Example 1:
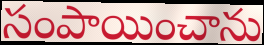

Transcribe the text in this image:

సంపాయించాను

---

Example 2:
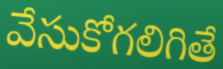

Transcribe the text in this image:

వేసుకోగలిగితే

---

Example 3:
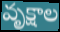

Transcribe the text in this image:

వృక్షాల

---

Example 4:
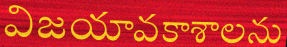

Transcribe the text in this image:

విజయావకాశాలను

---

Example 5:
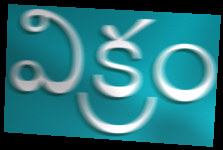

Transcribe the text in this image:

విక్రం